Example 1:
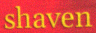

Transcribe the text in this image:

shaven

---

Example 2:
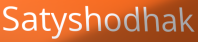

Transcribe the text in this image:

Satyshodhak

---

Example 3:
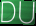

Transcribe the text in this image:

DU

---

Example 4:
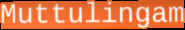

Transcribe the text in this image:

Muttulingam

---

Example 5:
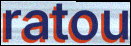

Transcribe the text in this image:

ratou